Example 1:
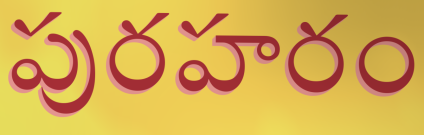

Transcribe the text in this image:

పురహరం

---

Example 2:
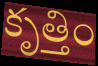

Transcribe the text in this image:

కృత్తిం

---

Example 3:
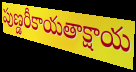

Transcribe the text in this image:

పుణ్డరీకాయతాక్షాయ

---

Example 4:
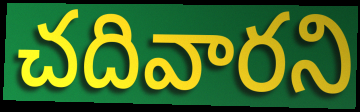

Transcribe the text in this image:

చదివారని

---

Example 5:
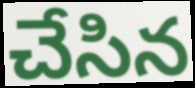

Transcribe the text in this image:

చేసిన